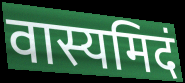
वास्यमिदं